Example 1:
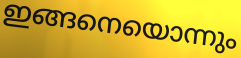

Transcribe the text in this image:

ഇങ്ങനെയൊന്നും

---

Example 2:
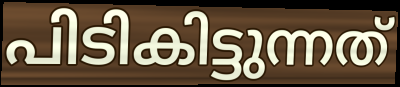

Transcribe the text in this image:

പിടികിട്ടുന്നത്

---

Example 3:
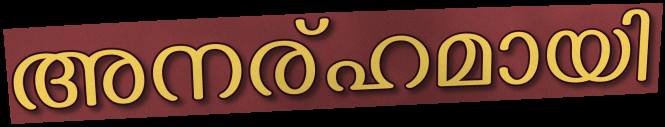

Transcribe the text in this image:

അനര്ഹമായി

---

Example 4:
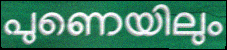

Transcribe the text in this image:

പുണെയിലും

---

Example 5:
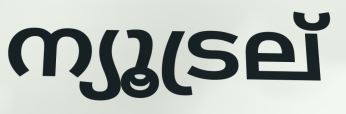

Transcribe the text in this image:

ന്യൂട്രല്